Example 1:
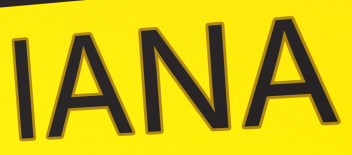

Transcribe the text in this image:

IANA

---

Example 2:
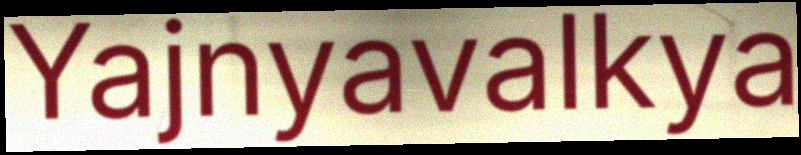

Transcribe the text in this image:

Yajnyavalkya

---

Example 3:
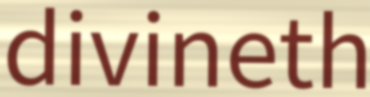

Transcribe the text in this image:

divineth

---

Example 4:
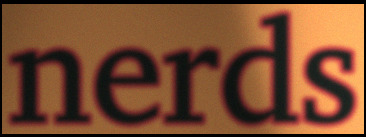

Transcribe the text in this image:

nerds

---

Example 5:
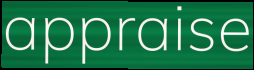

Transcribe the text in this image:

appraise